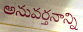
అనువర్తనాన్ని